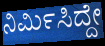
ನಿರ್ಮಿಸಿದ್ದೇ